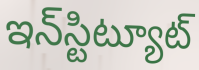
ఇన్‌స్టిట్యూట్